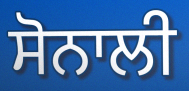
ਸੋਨਾਲੀ